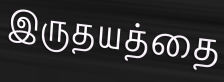
இருதயத்தை